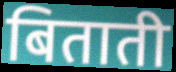
बिताती